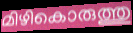
മിഴികൊരുത്തു